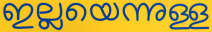
ഇല്ലയെന്നുള്ള